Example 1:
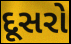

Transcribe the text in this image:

દૂસરો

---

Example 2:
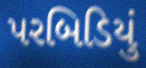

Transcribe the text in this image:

પરબિડિયું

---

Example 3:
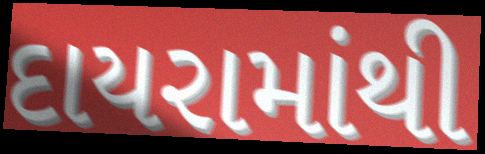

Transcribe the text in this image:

દાયરામાંથી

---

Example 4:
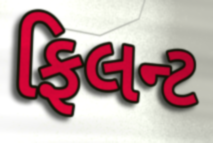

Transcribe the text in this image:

ફિલન્ટ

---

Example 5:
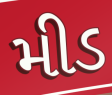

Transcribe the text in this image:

મીડ